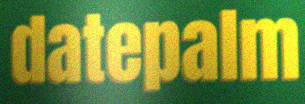
datepalm